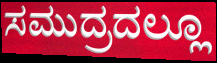
ಸಮುದ್ರದಲ್ಲೂ